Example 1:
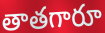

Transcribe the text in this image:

తాతగారూ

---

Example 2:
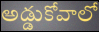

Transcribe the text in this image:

అడ్డుకోవాలో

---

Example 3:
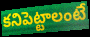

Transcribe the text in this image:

కనిపెట్టాలంటే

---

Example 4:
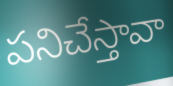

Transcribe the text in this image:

పనిచేస్తావా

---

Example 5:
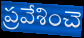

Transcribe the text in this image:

ప్రవేశించె